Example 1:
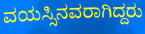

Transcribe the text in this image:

ವಯಸ್ಸಿನವರಾಗಿದ್ದರು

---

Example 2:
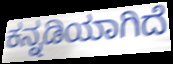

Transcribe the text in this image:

ಕನ್ನಡಿಯಾಗಿದೆ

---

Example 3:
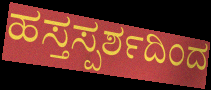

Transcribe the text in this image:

ಹಸ್ತಸ್ಪರ್ಶದಿಂದ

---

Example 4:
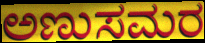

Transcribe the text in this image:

ಅಣುಸಮರ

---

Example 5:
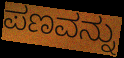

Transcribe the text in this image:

ಪಣವನ್ನು